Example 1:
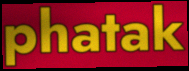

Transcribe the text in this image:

phatak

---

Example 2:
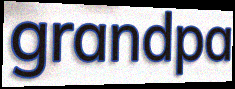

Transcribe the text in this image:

grandpa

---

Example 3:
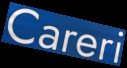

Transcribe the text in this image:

Careri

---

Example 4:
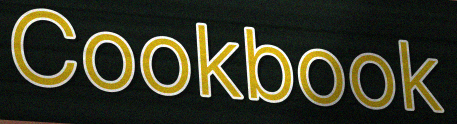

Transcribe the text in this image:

Cookbook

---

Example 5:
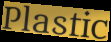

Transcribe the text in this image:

Plastic